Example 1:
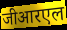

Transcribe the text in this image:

जीआरएल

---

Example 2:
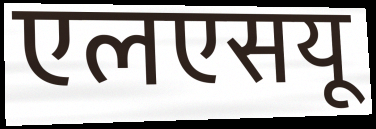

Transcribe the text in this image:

एलएसयू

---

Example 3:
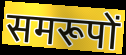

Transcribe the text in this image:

समरूपों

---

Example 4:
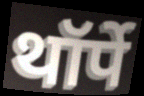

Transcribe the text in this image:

थॉर्पे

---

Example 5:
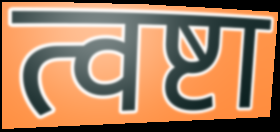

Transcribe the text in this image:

त्वष्टा